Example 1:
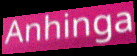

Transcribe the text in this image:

Anhinga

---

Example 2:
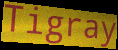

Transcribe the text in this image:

Tigray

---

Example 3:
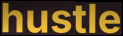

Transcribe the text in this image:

hustle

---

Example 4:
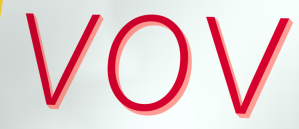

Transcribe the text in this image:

vov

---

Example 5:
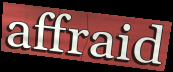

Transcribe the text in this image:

affraid